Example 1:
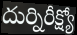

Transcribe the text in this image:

దుర్నిరీక్ష్యో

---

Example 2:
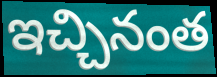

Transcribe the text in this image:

ఇచ్చినంత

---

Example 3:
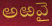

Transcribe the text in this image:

అఱవై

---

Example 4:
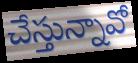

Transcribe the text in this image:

చేస్తున్నావో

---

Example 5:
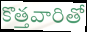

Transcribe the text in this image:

కొత్తవారితో